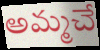
అమ్మచే